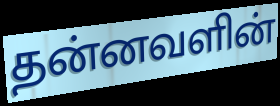
தன்னவளின்